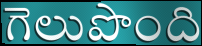
గెలుపొంది